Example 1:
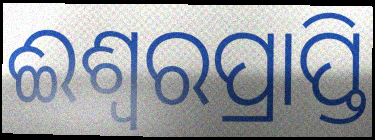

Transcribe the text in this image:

ଈଶ୍ଵରପ୍ରାପ୍ତି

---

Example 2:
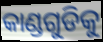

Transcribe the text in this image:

କାଣ୍ଡଗୁଡିକୁ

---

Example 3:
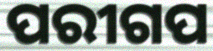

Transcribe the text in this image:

ପରୀଗପ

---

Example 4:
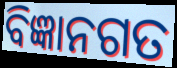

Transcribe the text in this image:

ବିଜ୍ଞାନଗତ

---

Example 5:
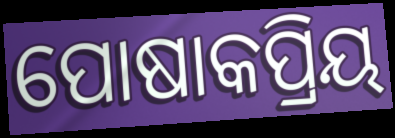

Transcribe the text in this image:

ପୋଷାକପ୍ରିୟ